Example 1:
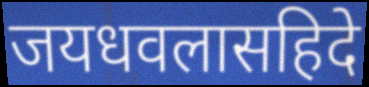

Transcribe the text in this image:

जयधवलासहिदे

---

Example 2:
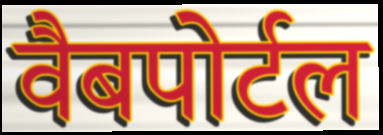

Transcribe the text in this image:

वैबपोर्टल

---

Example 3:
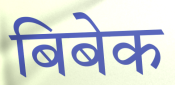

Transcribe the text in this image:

बिबेक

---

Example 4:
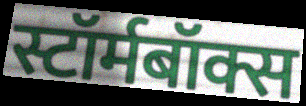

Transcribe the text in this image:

स्टॉर्मबॉक्स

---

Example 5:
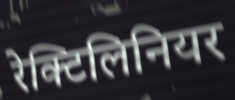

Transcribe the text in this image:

रेक्टिलिनियर